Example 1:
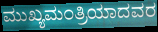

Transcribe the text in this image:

ಮುಖ್ಯಮಂತ್ರಿಯಾದವರ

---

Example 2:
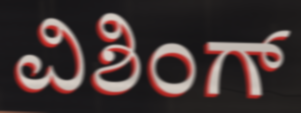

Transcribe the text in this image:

ವಿಶಿಂಗ್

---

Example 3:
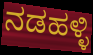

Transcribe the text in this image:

ನಡಹಳ್ಳಿ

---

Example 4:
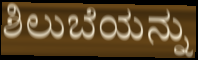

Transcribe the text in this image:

ಶಿಲುಬೆಯನ್ನು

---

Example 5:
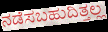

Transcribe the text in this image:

ನಡೆಸಬಹುದಿತ್ತಲ್ಲ